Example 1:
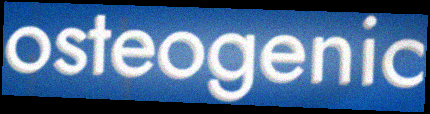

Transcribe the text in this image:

osteogenic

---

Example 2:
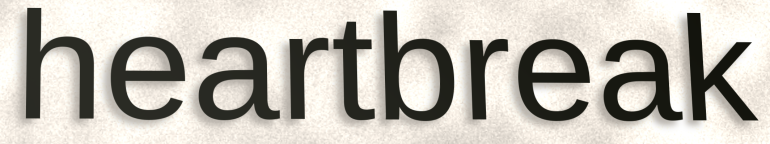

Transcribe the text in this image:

heartbreak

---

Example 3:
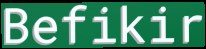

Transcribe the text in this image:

Befikir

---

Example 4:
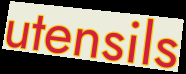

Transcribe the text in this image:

utensils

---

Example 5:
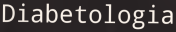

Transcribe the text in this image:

Diabetologia